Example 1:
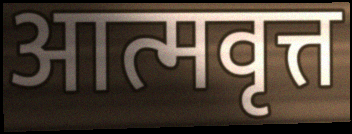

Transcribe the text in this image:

आत्मवृत्त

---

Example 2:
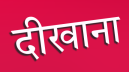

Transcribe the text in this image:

दीखाना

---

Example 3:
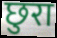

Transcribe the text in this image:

छुरा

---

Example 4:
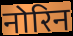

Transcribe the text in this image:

नोरिन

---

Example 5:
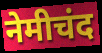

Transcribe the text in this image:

नेमीचंद